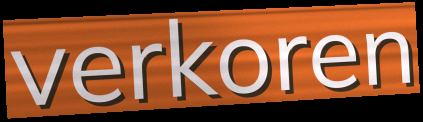
verkoren